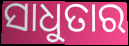
ସାଧୁତାର